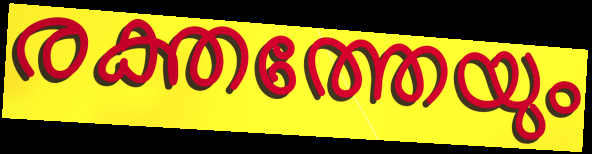
രക്തത്തേയും